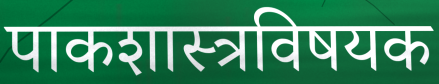
पाकशास्त्रविषयक